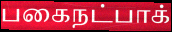
பகைநட்பாக்